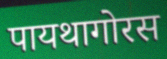
पायथागोरस